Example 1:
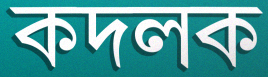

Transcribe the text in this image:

কদলক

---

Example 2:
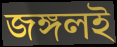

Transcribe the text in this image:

জঙ্গলই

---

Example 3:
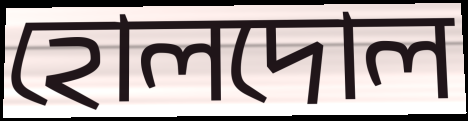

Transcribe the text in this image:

হোলদোল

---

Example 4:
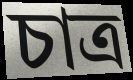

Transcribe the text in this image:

চাত্র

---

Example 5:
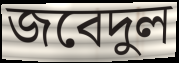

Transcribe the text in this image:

জবেদুল